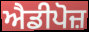
ਐਡੀਪੋਜ਼